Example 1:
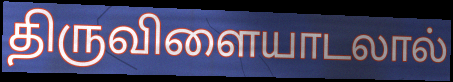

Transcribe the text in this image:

திருவிளையாடலால்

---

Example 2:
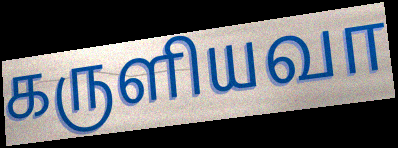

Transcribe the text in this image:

கருளியவா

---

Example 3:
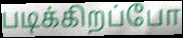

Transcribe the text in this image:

படிக்கிறப்போ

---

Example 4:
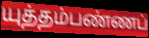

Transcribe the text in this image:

யுத்தம்பண்ணப்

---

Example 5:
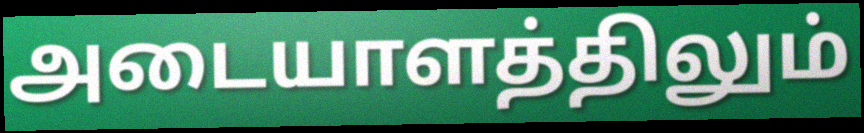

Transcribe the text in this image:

அடையாளத்திலும்